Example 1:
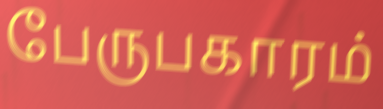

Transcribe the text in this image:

பேருபகாரம்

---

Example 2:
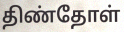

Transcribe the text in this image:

திண்தோள்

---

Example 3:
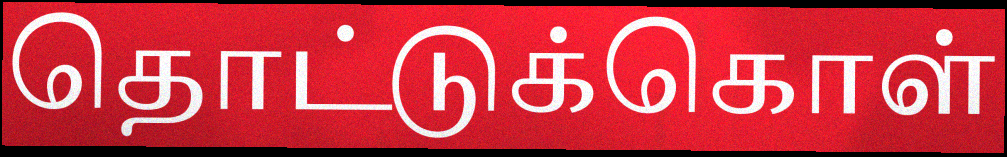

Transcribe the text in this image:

தொட்டுக்கொள்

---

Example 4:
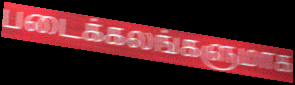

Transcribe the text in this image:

படைக்கலங்களுமாக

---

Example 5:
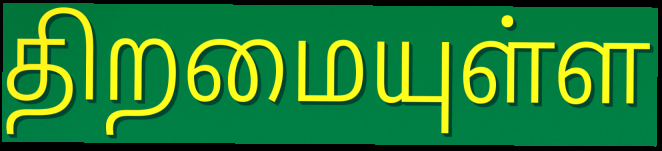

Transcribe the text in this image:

திறமையுள்ள